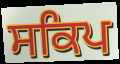
ਸਕਿਪ